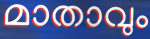
മാതാവും